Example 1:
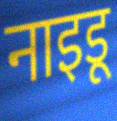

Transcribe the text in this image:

नाइडू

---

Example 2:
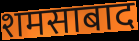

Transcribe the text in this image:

शमसाबाद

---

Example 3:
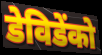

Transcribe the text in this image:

डेविडेंको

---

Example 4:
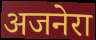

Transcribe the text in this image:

अजनेरा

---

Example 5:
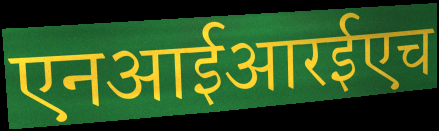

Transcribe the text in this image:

एनआईआरईएच